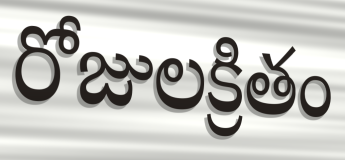
రోజులక్రితం